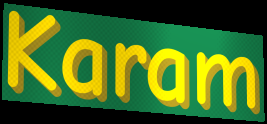
Karam